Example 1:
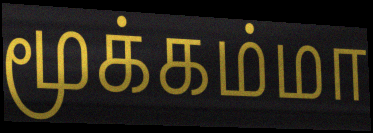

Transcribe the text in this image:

மூக்கம்மா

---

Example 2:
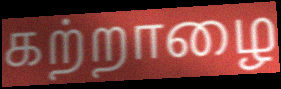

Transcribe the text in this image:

கற்றாழை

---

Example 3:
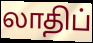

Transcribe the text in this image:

லாதிப்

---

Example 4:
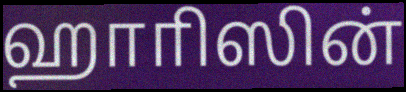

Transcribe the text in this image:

ஹாரிஸின்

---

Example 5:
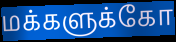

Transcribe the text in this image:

மக்களுக்கோ